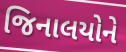
જિનાલયોને